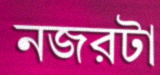
নজরটা